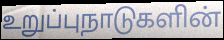
உறுப்புநாடுகளின்